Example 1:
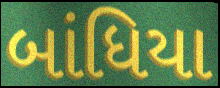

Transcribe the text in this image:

બાંધિયા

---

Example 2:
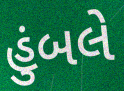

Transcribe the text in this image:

હુંબલે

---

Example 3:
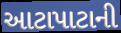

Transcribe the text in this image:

આટાપાટાની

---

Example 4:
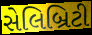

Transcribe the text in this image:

સેલિબ્રિટી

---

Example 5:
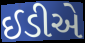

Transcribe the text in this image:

ઈડીએ